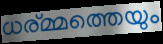
ധര്മ്മത്തെയും